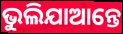
ଭୁଲିଯାଆନ୍ତେ